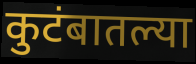
कुटंबातल्या